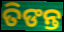
ତିଙନ୍ତ